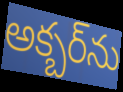
అక్బర్‌ను